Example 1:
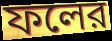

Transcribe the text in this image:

ফলের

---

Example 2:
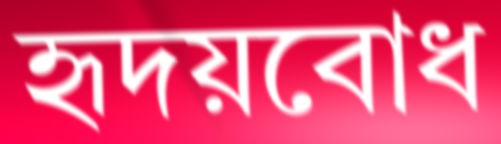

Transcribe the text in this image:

হৃদয়বোধ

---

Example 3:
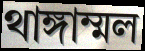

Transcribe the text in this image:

থাঙ্গাম্মল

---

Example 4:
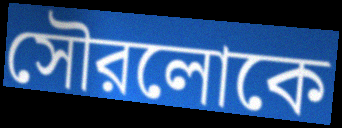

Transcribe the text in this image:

সৌরলোকে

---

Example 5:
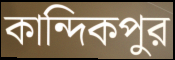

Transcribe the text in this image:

কান্দিকপুর